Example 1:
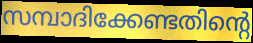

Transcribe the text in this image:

സമ്പാദിക്കേണ്ടതിന്റെ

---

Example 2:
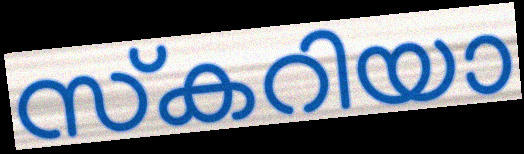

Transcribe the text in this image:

സ്‌കറിയാ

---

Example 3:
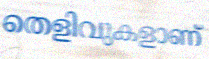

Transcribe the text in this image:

തെളിവുകളാണ്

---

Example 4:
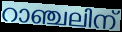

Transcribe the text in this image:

റാഞ്ചലിന്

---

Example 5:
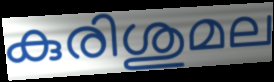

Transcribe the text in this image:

കുരിശുമല